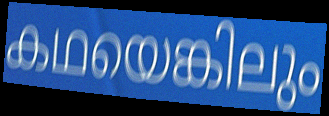
കഥയെങ്കിലും